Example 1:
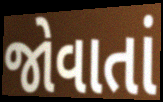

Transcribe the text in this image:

જોવાતાં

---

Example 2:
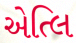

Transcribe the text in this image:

એત્લિ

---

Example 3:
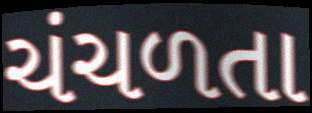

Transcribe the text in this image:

ચંચળતા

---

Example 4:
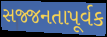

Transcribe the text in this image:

સજ્જનતાપૂર્વક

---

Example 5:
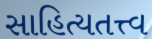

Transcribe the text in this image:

સાહિત્યતત્ત્વ